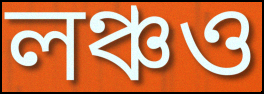
লঞ্চও